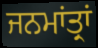
ਜਨਮਾਂਤ੍ਰਾਂ